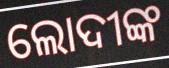
ଲୋଦୀଙ୍କ